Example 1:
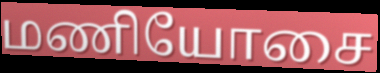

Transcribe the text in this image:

மணியோசை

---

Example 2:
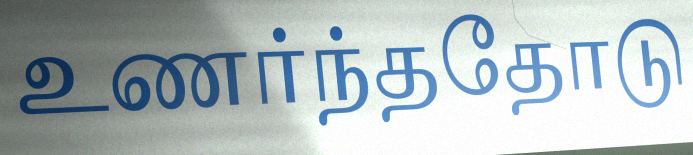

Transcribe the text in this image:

உணர்ந்ததோடு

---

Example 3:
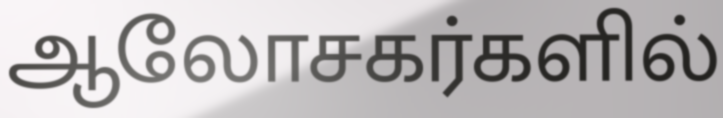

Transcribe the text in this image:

ஆலோசகர்களில்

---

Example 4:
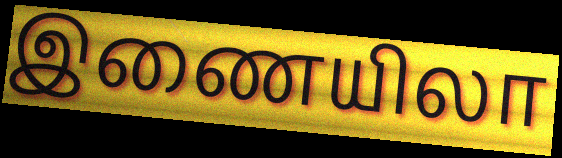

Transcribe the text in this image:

இணையிலா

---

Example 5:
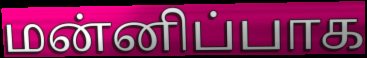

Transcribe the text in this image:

மன்னிப்பாக